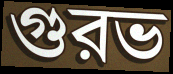
গুরভ